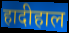
हादीहाल